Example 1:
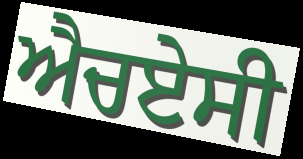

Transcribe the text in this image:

ਐਚਏਸੀ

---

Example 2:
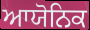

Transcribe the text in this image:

ਆਯੋਨਿਕ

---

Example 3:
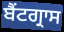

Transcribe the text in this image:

ਬੈਂਟਗ੍ਰਾਸ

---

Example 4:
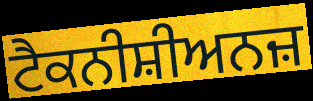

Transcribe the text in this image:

ਟੈਕਨੀਸ਼ੀਅਨਜ਼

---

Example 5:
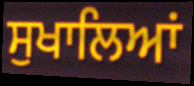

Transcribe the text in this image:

ਸੁਖਾਲਿਆਂ